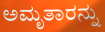
ಅಮೃತಾರನ್ನು